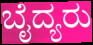
ಬೈದ್ಯರು